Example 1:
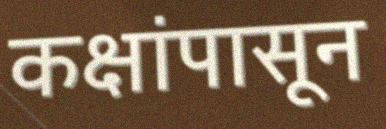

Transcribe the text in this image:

कक्षांपासून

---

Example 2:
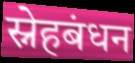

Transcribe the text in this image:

स्नेहबंधन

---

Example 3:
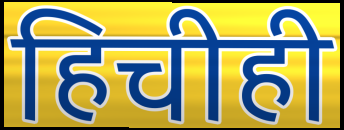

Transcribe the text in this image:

हिचीही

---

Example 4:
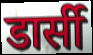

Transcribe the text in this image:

डार्सी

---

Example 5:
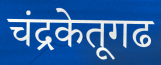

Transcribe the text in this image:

चंद्रकेतूगढ